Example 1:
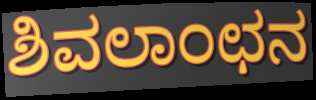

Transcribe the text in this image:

ಶಿವಲಾಂಛನ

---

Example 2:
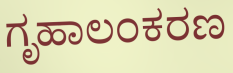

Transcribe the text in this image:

ಗೃಹಾಲಂಕರಣ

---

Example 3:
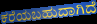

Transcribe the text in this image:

ಕರೆಯಬಹುದಾಗಿದೆ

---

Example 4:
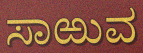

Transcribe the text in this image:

ಸಾಱುವ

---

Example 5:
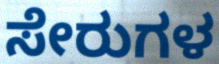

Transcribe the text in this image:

ಸೇರುಗಳ